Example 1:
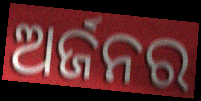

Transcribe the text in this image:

ଅର୍ଜନର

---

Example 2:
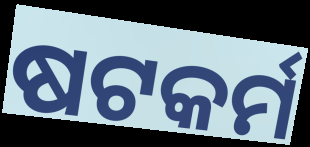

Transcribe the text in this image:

ଷଟକର୍ମ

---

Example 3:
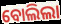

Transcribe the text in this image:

ବୋଲିଲା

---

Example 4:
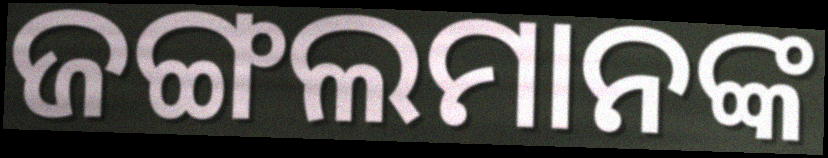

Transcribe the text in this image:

ଜଙ୍ଗଲମାନଙ୍କ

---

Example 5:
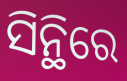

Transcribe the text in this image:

ସିନ୍ଥିରେ